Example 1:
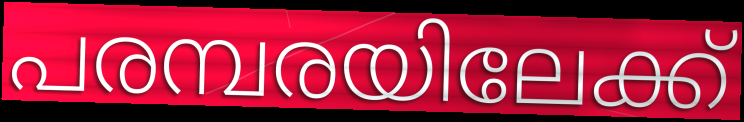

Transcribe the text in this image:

പരമ്പരയിലേക്ക്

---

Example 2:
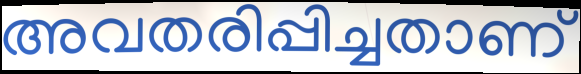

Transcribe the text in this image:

അവതരിപ്പിച്ചതാണ്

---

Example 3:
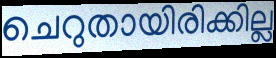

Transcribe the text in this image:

ചെറുതായിരിക്കില്ല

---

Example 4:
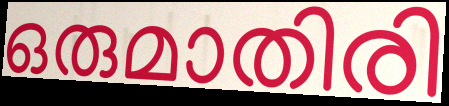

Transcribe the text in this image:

ഒരുമാതിരി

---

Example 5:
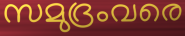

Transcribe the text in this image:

സമുദ്രംവരെ